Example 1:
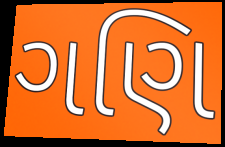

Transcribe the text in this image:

ગણિ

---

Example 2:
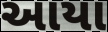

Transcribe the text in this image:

આયા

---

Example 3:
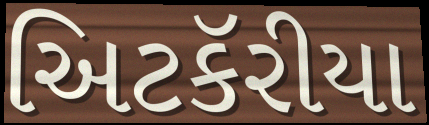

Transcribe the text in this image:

અિટકૅરીયા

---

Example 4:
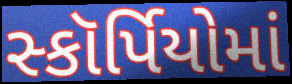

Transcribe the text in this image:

સ્કૉર્પિયોમાં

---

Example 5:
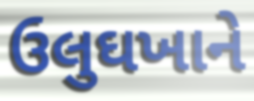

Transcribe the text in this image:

ઉલુઘખાને